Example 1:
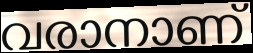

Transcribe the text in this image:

വരാനാണ്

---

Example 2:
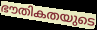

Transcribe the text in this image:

ഭൗതികതയുടെ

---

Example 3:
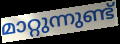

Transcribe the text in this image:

മാറ്റുന്നുണ്ട്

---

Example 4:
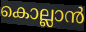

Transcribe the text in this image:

കൊല്ലാൻ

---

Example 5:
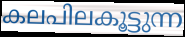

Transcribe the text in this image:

കലപിലകൂട്ടുന്ന